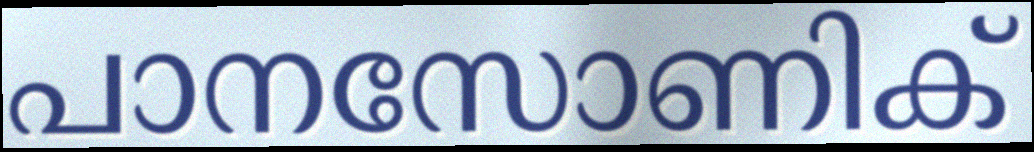
പാനസോണിക്